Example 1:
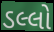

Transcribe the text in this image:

ડલ્લો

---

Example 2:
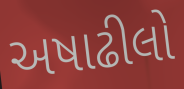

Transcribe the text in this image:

અષાઢીલો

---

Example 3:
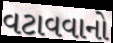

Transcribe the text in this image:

વટાવવાનો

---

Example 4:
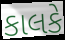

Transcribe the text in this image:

કાલકે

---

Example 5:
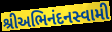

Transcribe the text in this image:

શ્રીઅભિનંદનસ્વામી